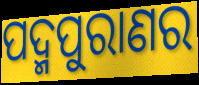
ପଦ୍ମପୁରାଣର